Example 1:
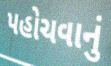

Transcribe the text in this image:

પહોચવાનું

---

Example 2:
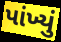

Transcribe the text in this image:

પાંખ્યું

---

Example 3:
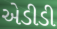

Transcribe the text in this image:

એડીડી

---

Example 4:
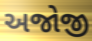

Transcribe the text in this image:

અજોજી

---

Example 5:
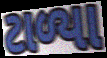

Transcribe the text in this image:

ટાળ્યા